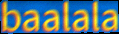
baalala